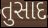
તુસાદ